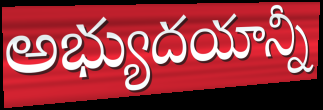
అభ్యుదయాన్నీ